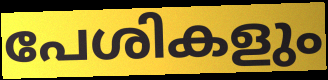
പേശികളും